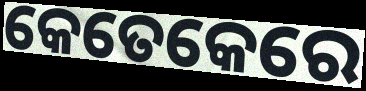
କେତେକେରେ